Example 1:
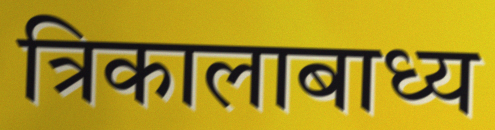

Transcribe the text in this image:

त्रिकालाबाध्य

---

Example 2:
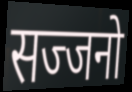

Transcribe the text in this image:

सज्जनो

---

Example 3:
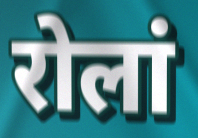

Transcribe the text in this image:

रोलां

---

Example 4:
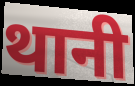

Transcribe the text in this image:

थानी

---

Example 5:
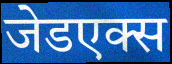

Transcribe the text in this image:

जेडएक्स